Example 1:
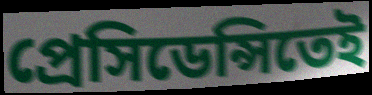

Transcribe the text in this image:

প্রেসিডেন্সিতেই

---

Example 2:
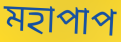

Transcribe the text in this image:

মহাপাপ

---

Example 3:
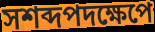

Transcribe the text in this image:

সশব্দপদক্ষেপে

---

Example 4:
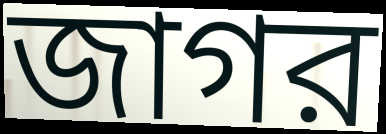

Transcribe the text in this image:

জাগর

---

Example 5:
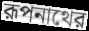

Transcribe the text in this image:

রূপনাথের